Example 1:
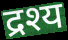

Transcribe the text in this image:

द्रश्य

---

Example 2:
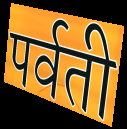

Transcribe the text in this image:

पर्वती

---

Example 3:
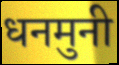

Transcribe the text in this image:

धनमुनी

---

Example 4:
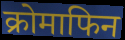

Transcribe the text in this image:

क्रोमाफिन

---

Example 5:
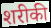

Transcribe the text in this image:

शरीकी